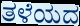
ತಳೆಯದ